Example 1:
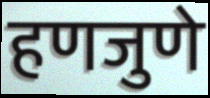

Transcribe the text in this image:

हणजुणे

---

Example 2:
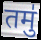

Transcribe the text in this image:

तमु॑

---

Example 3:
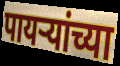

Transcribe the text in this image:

पायर्‍यांच्या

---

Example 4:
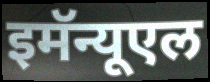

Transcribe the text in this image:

इमॅन्यूएल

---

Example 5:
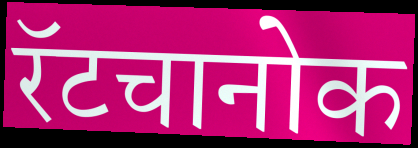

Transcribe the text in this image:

रॅटचानोक